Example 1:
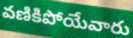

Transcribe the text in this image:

వణికిపోయేవారు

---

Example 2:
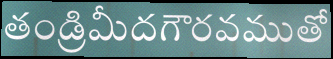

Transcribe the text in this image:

తండ్రిమీదగౌరవముతో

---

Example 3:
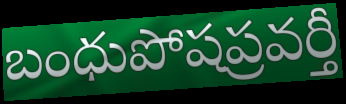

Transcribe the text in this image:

బంధుపోషప్రవర్తీ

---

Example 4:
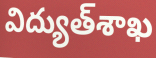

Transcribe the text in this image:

విద్యుత్‌శాఖ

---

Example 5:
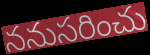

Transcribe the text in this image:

ననుసరించు